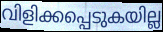
വിളിക്കപ്പെടുകയില്ല